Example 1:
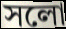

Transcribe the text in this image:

সলো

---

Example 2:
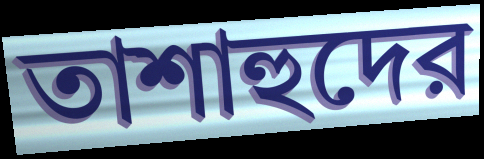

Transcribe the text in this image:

তাশাহুদের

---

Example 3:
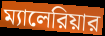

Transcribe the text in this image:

ম্যালেরিয়ার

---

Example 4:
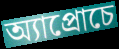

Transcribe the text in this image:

অ্যাপ্রোচে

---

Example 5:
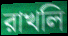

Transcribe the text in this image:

রাখলি